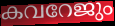
കവറേജും